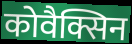
कोवैक्सिन